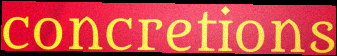
concretions